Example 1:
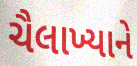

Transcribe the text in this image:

ચૈલાખ્યાને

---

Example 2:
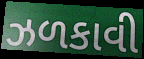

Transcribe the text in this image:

ઝળકાવી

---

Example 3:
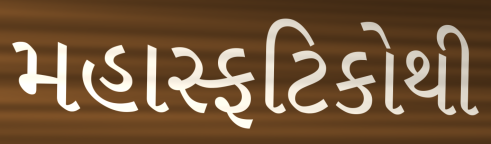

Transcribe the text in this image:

મહાસ્ફટિકોથી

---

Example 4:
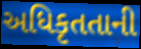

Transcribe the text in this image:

અધિકૃતતાની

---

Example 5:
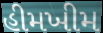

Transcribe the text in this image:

હીમખીમ